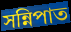
সন্নিপাত